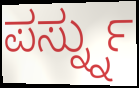
ಪರ್ಸ್ನ್ನು